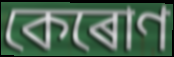
কেৰোণ